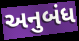
અનુબંધ